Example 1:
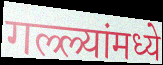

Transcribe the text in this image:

गल्ल्यांमध्ये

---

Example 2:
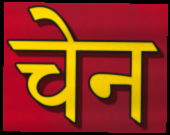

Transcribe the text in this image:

चेन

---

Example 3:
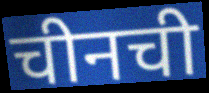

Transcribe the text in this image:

चीनची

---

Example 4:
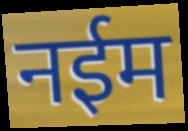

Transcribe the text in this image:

नईम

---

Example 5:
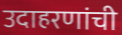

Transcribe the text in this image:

उदाहरणांची